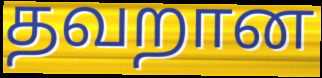
தவறான